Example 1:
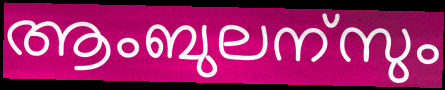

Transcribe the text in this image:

ആംബുലന്സും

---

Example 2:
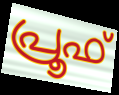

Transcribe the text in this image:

പ്രൂഫ്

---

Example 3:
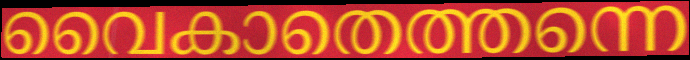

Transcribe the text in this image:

വൈകാതെത്തന്നെ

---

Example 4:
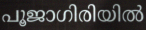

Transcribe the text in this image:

പൂജാഗിരിയിൽ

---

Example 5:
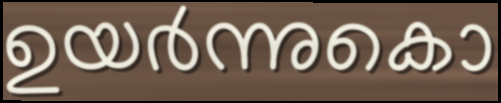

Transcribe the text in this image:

ഉയർന്നുകൊ